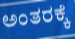
ಅಂತರಕ್ಕೆ